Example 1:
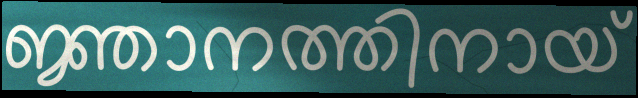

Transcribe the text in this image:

ജ്ഞാനത്തിനായ്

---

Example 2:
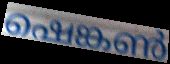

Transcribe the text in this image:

ഷെങ്കൺ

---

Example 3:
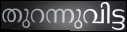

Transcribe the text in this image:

തുറന്നുവിട്ട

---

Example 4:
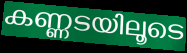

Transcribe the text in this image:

കണ്ണടയിലൂടെ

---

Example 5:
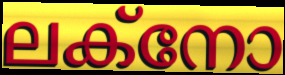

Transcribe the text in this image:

ലക്നോ